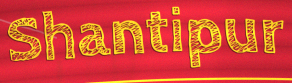
Shantipur